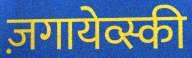
ज़गायेव्स्की